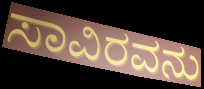
ಸಾವಿರವನು